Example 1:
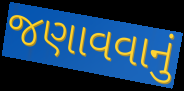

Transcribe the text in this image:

જણાવવાનું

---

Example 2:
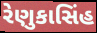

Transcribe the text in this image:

રેણુકાસિંહ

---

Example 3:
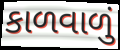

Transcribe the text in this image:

કાળવાળું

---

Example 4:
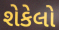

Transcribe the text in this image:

શેકેલો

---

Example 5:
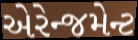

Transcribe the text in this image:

એરેન્જમેન્ટ